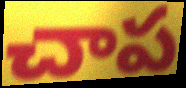
చాప